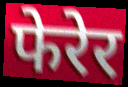
फेरेर